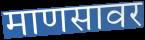
माणसावर